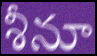
శీనూ